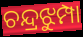
ଚନ୍ଦ୍ରଝୁମ୍ପା